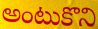
అంటుకొని